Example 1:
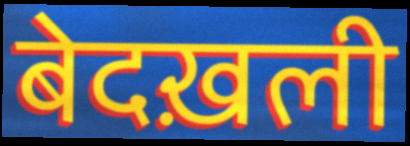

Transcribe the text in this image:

बेदख़ली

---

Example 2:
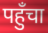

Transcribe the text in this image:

पहुँचा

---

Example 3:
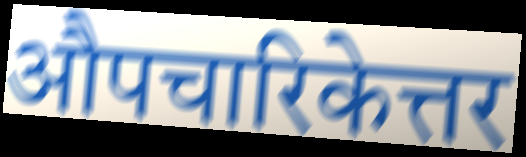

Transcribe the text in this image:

औपचारिकेत्तर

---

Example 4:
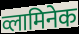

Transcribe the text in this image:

व्लामिनेक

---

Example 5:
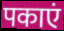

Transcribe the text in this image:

पकाएं